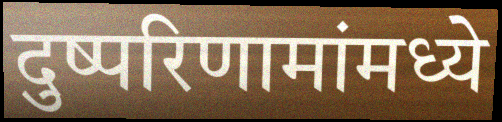
दुष्परिणामांमध्ये